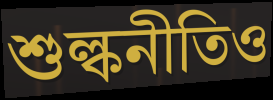
শুল্কনীতিও